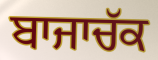
ਬਾਜਾਚੱਕ